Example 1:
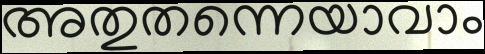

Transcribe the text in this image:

അതുതന്നെയാവാം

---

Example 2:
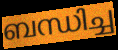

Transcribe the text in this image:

ബന്ധിച്ച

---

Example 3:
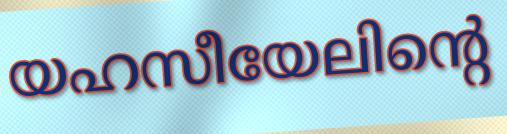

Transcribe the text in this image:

യഹസീയേലിന്റെ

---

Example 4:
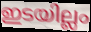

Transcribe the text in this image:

ഇടയില്ലം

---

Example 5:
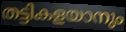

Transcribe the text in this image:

തട്ടികളയാനും